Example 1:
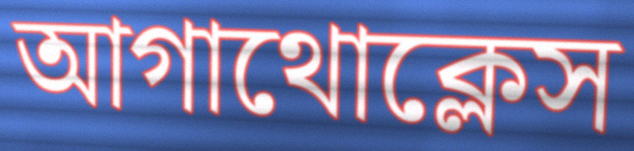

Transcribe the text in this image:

আগাথোক্লেস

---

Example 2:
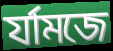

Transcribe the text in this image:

র্যামজে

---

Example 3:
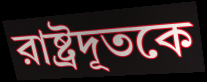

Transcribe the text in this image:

রাষ্ট্রদূতকে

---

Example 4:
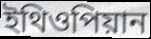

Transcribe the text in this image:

ইথিওপিয়ান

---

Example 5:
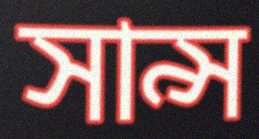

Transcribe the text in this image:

সান্স